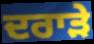
ਦਰਾੜੇ